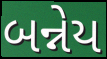
બન્નેય